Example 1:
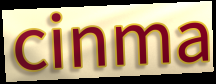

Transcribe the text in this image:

cinma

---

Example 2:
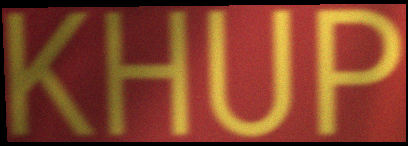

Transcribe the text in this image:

KHUP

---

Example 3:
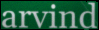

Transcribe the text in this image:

arvind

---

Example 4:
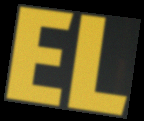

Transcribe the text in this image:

EL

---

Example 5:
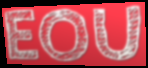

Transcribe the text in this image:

EOU